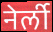
नेर्ली